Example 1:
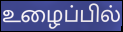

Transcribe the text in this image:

உழைப்பில்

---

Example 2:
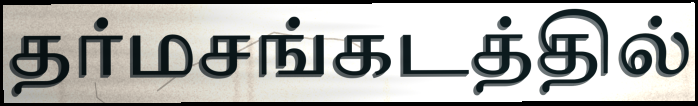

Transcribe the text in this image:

தர்மசங்கடத்தில்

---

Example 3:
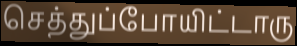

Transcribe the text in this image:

செத்துப்போயிட்டாரு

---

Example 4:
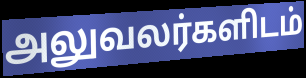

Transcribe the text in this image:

அலுவலர்களிடம்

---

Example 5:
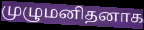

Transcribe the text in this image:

முழுமனிதனாக